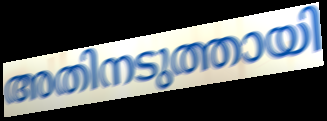
അതിനടുത്തായി